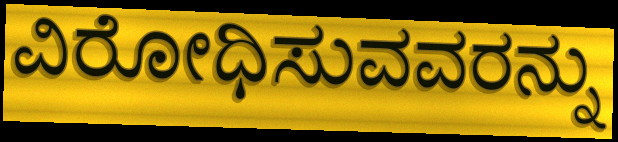
ವಿರೋಧಿಸುವವರನ್ನು